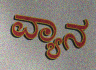
ವ್ಯಾನ